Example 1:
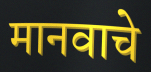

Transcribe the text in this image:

मानवाचे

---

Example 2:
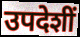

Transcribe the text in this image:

उपदेशीं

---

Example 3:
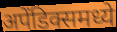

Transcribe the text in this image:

अपेंडिक्समध्ये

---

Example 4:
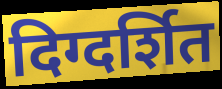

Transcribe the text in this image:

दिग्दर्शित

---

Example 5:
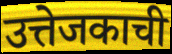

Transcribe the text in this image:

उत्तेजकाची